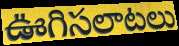
ఊగిసలాటలు